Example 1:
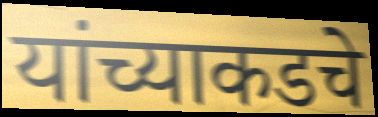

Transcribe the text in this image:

यांच्याकडचे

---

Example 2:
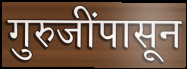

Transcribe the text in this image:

गुरुजींपासून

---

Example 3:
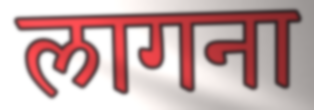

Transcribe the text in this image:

लागना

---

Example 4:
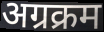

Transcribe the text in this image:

अग्रक्रम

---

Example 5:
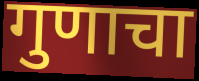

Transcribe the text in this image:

गुणाचा